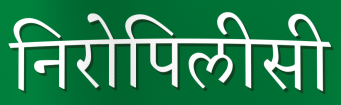
निरोपिलीसी